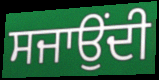
ਸਜਾਉਂਦੀ